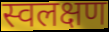
स्वलक्षण